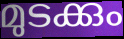
മുടക്കും